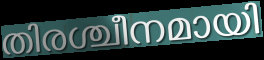
തിരശ്ചീനമായി